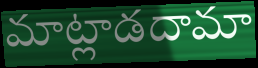
మాట్లాడదామా